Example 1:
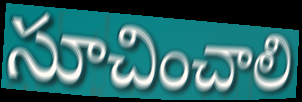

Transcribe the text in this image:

సూచించాలి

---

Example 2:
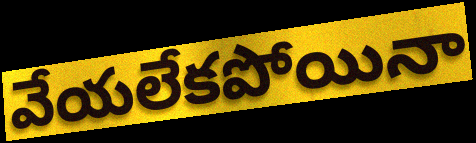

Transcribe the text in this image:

వేయలేకపోయినా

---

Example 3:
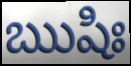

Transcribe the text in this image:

ఋషిః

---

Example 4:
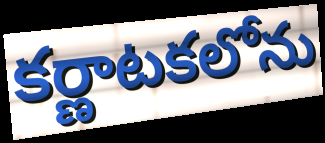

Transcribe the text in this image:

కర్ణాటకలోను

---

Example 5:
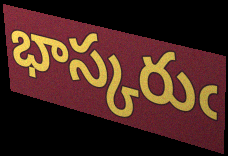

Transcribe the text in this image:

భాస్కరుఁ